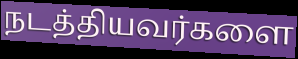
நடத்தியவர்களை